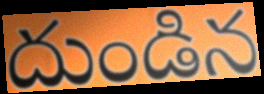
దుండిన